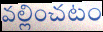
వల్లించటం